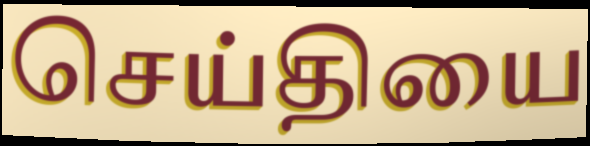
செய்தியை